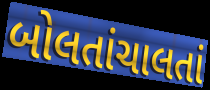
બોલતાંચાલતાં